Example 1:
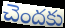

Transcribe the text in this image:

చెందకు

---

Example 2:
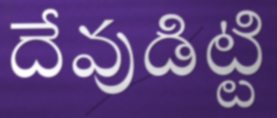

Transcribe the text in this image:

దేవుడిట్టి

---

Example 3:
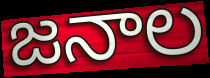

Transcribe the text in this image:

జనాల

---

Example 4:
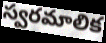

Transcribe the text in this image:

స్వరమాలిక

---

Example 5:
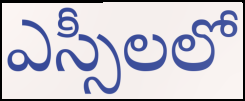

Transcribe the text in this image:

ఎస్సీలలో